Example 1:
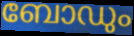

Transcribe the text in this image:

ബോഡും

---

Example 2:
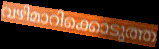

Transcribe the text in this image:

വഴിമാറിക്കൊടുത്ത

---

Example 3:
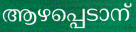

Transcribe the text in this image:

ആഴപ്പെടാന്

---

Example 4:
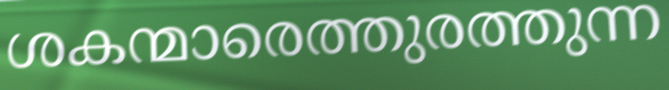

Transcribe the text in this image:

ശകന്മാരെത്തുരത്തുന്ന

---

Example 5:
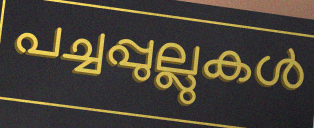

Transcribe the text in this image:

പച്ചപ്പുല്ലുകൾ